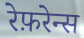
रेफ़रेन्स